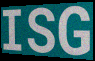
ISG